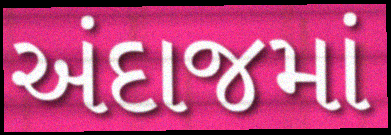
અંદાજમાં